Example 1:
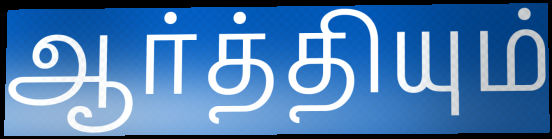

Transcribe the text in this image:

ஆர்த்தியும்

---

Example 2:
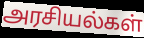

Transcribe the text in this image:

அரசியல்கள்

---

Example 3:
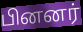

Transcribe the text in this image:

பினனர்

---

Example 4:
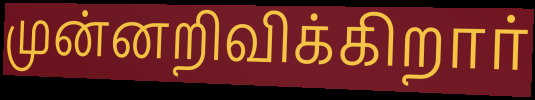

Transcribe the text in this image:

முன்னறிவிக்கிறார்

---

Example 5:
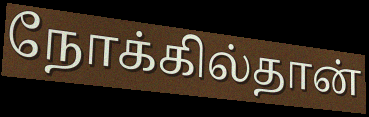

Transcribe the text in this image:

நோக்கில்தான்